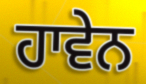
ਹਾਵੇਨ